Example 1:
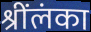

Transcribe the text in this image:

श्रींलंका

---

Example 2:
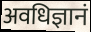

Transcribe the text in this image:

अवधिज्ञानं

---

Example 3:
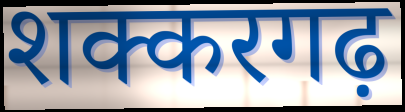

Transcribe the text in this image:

शक्करगढ़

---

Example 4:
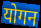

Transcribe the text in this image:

योगन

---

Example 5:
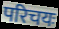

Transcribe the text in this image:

परिचयः